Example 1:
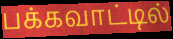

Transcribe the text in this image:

பக்கவாட்டில்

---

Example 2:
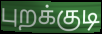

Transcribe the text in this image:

புறக்குடி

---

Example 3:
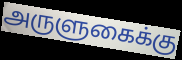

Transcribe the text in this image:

அருளுகைக்கு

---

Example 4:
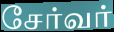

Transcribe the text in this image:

சேர்வர்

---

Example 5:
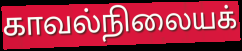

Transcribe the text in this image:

காவல்நிலையக்